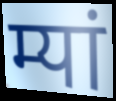
म्यां